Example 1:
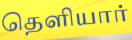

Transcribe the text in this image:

தெளியார்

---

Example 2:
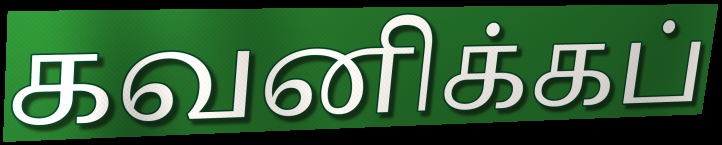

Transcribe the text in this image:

கவனிக்கப்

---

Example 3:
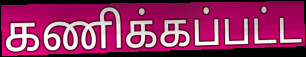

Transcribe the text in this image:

கணிக்கப்பட்ட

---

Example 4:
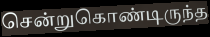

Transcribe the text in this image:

சென்றுகொண்டிருந்த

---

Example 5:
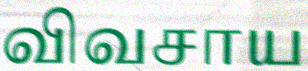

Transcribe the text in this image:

விவசாய